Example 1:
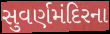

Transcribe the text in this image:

સુવર્ણમંદિરના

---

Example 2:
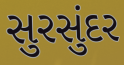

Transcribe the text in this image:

સુરસુંદર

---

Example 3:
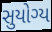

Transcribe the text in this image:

સુયોગ્ય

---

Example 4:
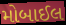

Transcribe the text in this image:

મોબાઈલ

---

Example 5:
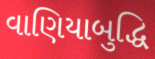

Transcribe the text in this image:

વાણિયાબુદ્ધિ